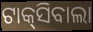
ଟାକ୍‌ସିବାଲା